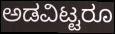
ಅಡವಿಟ್ಟರೂ